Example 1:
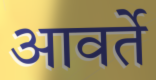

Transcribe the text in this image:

आवर्ते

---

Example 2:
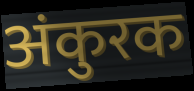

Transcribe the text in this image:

अंकुरक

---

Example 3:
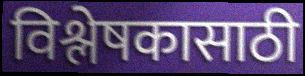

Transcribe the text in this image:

विश्लेषकासाठी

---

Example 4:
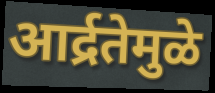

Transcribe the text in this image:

आर्द्रतेमुळे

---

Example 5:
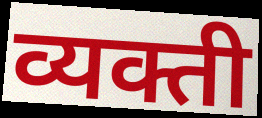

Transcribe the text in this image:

व्यक्ती